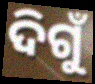
ଦିଗୁଁ